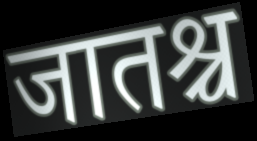
जातश्च